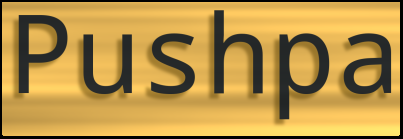
Pushpa